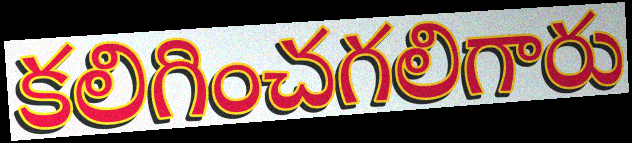
కలిగించగలిగారు